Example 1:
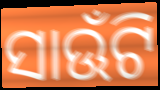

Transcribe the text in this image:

ସାଊଁଟି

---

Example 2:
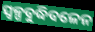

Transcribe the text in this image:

ସ୍ଵଳ୍ପବୁଦ୍ଧିବଳେନ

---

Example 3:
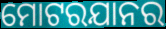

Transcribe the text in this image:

ମୋଟରଯାନର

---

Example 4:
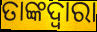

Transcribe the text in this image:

ତାଙ୍କଦ୍ଵାରା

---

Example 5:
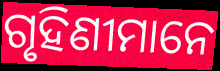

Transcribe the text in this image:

ଗୃହିଣୀମାନେ